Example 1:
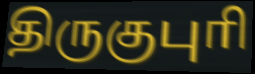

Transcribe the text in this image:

திருகுபுரி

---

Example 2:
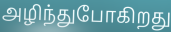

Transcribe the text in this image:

அழிந்துபோகிறது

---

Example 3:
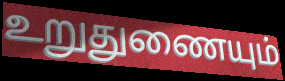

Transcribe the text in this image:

உறுதுணையும்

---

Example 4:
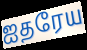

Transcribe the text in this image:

ஐதரேய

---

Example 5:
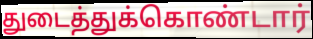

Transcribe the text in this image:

துடைத்துக்கொண்டார்